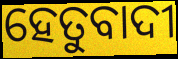
ହେତୁବାଦୀ